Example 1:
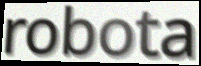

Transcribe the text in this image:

robota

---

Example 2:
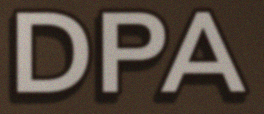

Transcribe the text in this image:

DPA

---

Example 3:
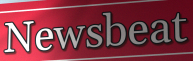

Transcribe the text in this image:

Newsbeat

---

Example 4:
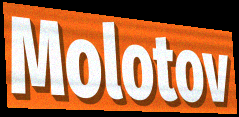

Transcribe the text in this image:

Molotov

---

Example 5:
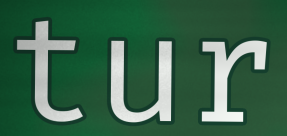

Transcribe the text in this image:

tur